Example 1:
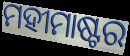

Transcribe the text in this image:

ମହୀମାଷ୍ଟର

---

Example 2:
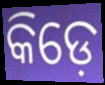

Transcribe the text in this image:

କିଡ଼େ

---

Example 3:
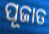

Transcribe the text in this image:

ପୂଜାତ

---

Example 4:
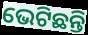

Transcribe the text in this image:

ଭେଟିଛନ୍ତି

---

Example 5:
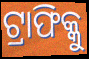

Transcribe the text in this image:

ଟ୍ରାଫିକ୍କୁ